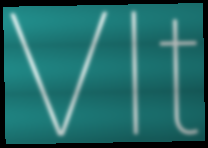
VIt